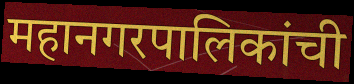
महानगरपालिकांची